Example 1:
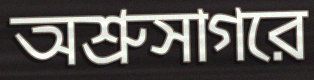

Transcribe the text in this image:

অশ্রুসাগরে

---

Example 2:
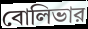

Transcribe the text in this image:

বোলিভার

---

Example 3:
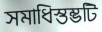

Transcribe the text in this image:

সমাধিস্তম্ভটি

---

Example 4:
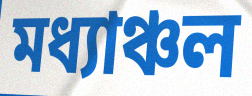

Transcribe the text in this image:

মধ্যাঞ্চল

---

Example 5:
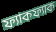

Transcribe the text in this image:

ফ্যাকফ্যাক